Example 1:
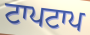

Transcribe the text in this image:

ਟਾਪਟਾਪ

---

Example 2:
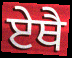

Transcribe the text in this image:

ਏਥੈ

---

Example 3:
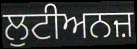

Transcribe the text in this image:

ਲੁਟੀਅਨਜ਼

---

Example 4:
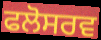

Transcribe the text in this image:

ਫਲੋਸਰਵ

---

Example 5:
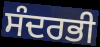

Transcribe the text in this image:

ਸੰਦਰਭੀ